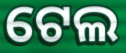
ଟେଲ